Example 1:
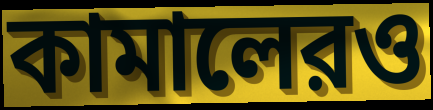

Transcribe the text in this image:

কামালেরও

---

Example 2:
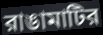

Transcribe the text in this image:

রাঙামাটির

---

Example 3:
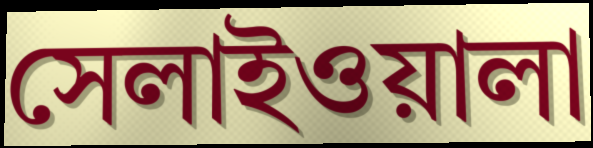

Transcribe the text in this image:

সেলাইওয়ালা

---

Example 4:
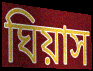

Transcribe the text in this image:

ঘিয়াস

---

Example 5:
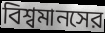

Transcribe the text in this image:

বিশ্বমানসের